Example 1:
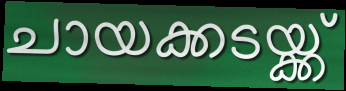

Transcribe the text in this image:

ചായക്കടയ്ക്ക്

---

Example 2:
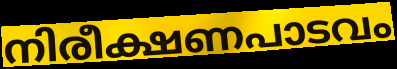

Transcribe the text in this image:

നിരീക്ഷണപാടവം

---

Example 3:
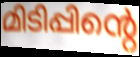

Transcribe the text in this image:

മിടിപ്പിന്റെ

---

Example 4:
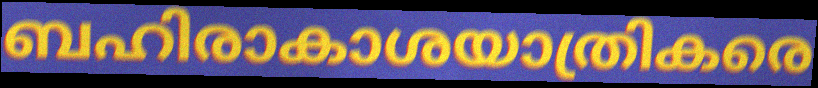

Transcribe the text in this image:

ബഹിരാകാശയാത്രികരെ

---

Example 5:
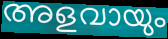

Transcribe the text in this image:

അളവായും